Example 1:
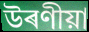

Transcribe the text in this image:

উৰণীয়া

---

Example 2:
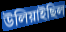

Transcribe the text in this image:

উলিয়াইছিল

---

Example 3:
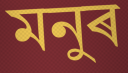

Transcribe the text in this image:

মনুৰ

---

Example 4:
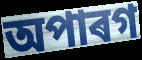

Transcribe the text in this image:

অপাৰগ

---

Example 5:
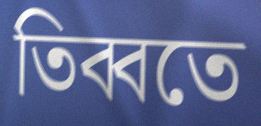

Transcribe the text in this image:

তিব্বতে